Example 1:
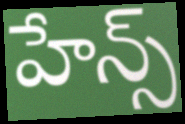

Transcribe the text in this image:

హేన్స్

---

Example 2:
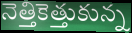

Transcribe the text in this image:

నెత్తికెత్తుకున్న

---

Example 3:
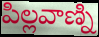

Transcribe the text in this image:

పిల్లవాణ్ని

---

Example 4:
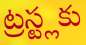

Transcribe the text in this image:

ట్రస్ట్లకు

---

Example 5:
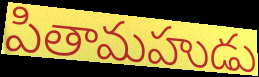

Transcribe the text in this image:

పితామహుడు